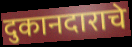
दुकानदाराचे